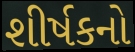
શીર્ષકનો